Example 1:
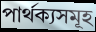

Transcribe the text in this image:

পাৰ্থক্যসমূহ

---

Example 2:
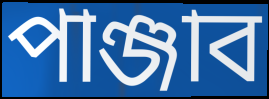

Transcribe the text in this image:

পাঞ্জাব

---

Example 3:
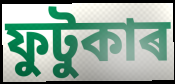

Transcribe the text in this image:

ফুটুকাৰ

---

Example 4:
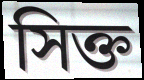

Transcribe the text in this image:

সিক্ত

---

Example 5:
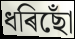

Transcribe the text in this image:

ধৰিছোঁ